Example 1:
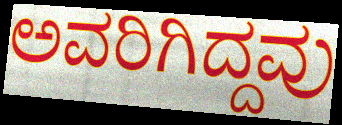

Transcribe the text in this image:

ಅವರಿಗಿದ್ದವು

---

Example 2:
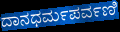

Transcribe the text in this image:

ದಾನಧರ್ಮಪರ್ವಣಿ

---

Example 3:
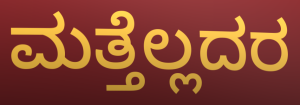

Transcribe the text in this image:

ಮತ್ತೆಲ್ಲದರ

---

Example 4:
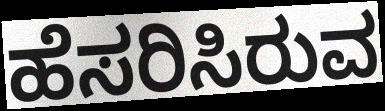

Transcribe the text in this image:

ಹೆಸರಿಸಿರುವ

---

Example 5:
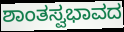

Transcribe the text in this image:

ಶಾಂತಸ್ವಭಾವದ